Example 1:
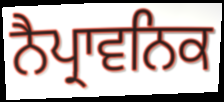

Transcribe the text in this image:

ਨੈਪ੍ਰਾਵਨਿਕ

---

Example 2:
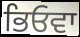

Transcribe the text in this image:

ਭਿਓਵਾ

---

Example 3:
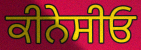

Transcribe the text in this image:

ਕੀਨੇਸੀਓ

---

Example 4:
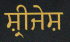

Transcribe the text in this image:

ਸ਼੍ਰੀਜੇਸ਼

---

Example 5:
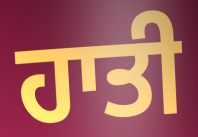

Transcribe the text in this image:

ਹਾਤੀ